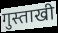
गुस्ताखी